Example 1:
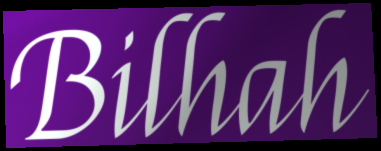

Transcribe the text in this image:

Bilhah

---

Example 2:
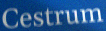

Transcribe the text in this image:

Cestrum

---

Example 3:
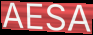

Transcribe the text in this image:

AESA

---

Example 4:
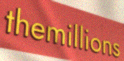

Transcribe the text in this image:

themillions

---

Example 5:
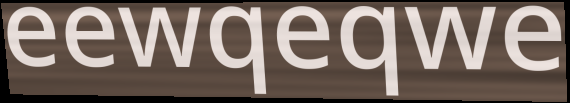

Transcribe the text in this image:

eewqeqwe